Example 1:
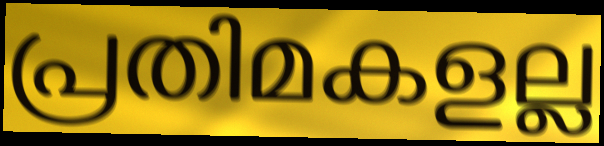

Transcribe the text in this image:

പ്രതിമകളല്ല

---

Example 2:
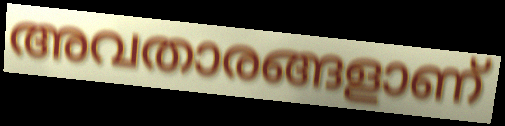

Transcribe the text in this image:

അവതാരങ്ങളാണ്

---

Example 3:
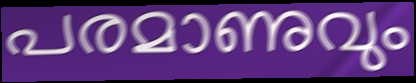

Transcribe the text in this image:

പരമാണുവും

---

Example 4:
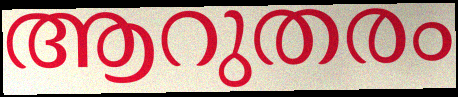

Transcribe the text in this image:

ആറുതരം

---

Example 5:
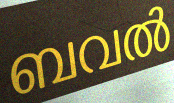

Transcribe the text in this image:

ബവൽ